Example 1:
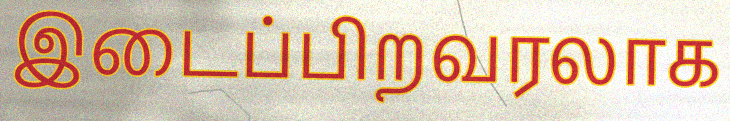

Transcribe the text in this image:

இடைப்பிறவரலாக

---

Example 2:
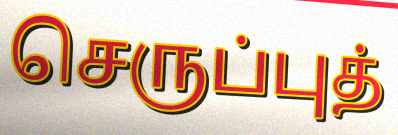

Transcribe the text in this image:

செருப்புத்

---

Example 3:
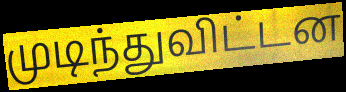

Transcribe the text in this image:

முடிந்துவிட்டன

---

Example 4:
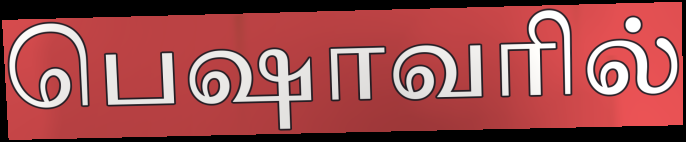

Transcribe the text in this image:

பெஷாவரில்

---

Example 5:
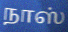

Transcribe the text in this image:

நாஸ்